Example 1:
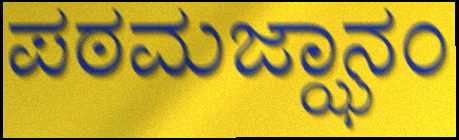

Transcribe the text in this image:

ಪಠಮಜ್ಝಾನಂ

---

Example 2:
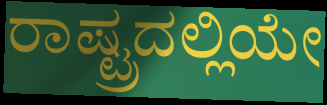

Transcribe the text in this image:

ರಾಷ್ಟ್ರದಲ್ಲಿಯೇ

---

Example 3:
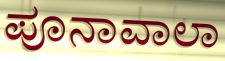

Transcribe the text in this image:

ಪೂನಾವಾಲಾ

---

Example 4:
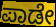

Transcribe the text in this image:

ಪಾಡೇ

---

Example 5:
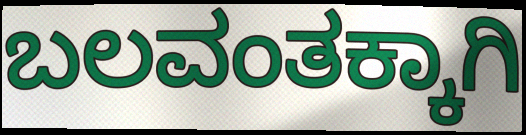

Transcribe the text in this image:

ಬಲವಂತಕ್ಕಾಗಿ